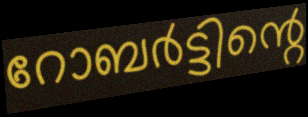
റോബർട്ടിന്റെ